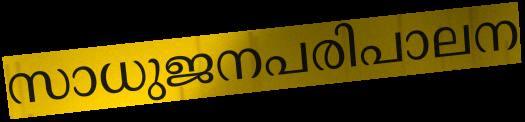
സാധുജനപരിപാലന